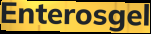
Enterosgel